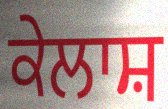
ਕੇਲਾਸ਼